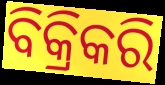
ବିକ୍ରିକରି